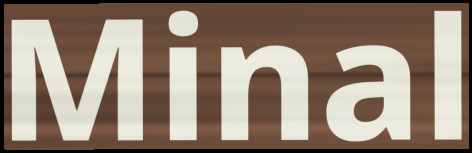
Minal